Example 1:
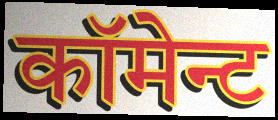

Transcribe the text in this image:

कॉमेन्ट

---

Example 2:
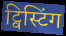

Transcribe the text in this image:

ट्विस्टिंग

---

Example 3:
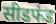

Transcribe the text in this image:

सीडफंड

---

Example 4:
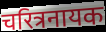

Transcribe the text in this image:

चरित्रनायक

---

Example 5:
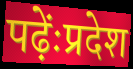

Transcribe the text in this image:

पढ़ेंःप्रदेश